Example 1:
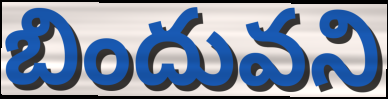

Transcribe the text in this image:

బిందువని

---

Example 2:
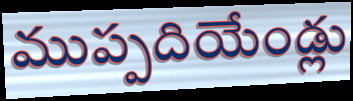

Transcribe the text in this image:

ముప్పదియేండ్లు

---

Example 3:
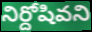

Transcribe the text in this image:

నిర్దోషివని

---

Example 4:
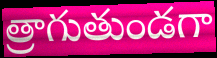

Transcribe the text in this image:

త్రాగుతుండగా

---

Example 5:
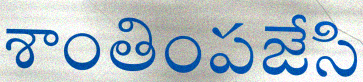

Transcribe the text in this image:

శాంతింపజేసి